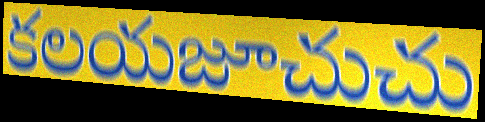
కలయజూచుచు